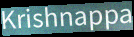
Krishnappa